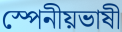
স্পেনীয়ভাষী